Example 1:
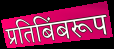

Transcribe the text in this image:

प्रतिबिंबरूप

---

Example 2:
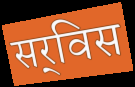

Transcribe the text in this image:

सर्विस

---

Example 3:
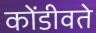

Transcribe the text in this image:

कोंडीवते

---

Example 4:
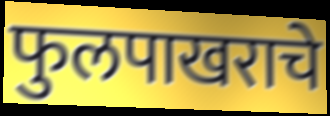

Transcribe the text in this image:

फुलपाखराचे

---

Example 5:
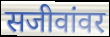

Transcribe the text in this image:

सजीवांवर